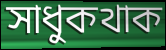
সাধুকথাক